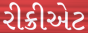
રીક્રીએટ